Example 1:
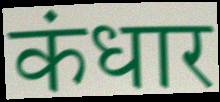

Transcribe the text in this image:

कंधार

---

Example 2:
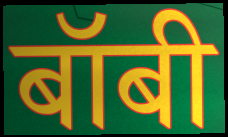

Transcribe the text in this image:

बॉबी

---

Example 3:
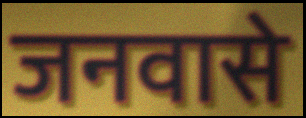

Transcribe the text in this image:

जनवासे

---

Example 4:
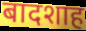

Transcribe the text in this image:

बादशाह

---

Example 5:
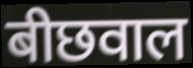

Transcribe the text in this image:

बीछवाल